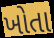
ખોતા